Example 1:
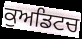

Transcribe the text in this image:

ਕੁਅਡਿਟਚ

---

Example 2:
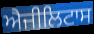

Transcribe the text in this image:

ਐਜੀਲਿਟਾਸ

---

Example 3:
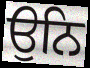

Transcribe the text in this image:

ਉਨਿ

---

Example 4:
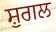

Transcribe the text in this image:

ਸ਼ੁਗਲ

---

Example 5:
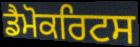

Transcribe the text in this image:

ਡੈਮੋਕਰਿਟਸ